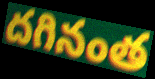
దగినంత